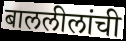
बाललीलांची